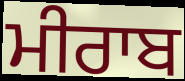
ਮੀਰਾਬ